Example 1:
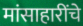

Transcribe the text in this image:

मांसाहारींचे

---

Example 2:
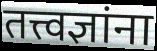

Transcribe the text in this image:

तत्त्वज्ञांना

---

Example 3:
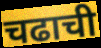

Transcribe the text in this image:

चढाची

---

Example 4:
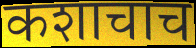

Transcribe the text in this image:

कशाचाच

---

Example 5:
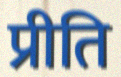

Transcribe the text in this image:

प्रीति